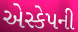
એસ્કેપની